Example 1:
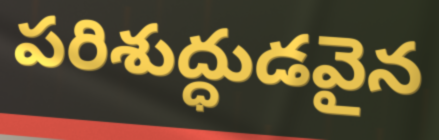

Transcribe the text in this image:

పరిశుద్ధుడవైన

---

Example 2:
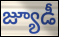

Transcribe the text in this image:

జ్యూడీ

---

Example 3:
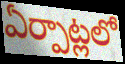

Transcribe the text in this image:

ఏర్పాట్లలో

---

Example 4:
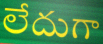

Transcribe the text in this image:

లేదుగా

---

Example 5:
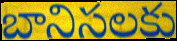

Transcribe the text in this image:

బానిసలకు